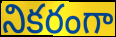
నికరంగా